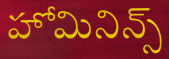
హోమినిన్స్